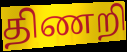
திணறி